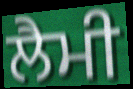
ਲੈਮੀ